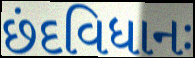
છંદવિધાનઃ